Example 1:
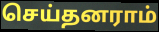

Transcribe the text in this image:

செய்தனராம்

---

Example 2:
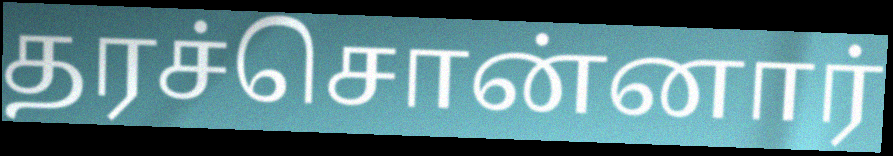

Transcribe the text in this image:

தரச்சொன்னார்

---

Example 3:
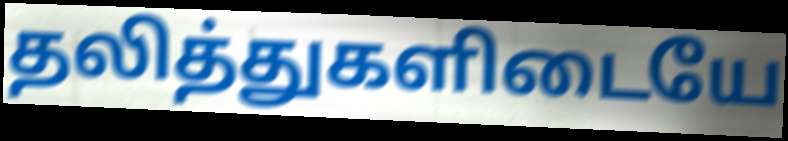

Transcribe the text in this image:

தலித்துகளிடையே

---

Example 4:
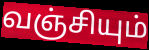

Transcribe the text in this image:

வஞ்சியும்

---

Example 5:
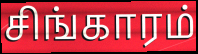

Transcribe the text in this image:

சிங்காரம்